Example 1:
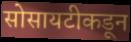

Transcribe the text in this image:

सोसायटीकडून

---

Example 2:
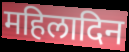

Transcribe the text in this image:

महिलादिन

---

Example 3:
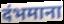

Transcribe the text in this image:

दंभमाना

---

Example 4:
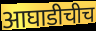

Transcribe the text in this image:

आघाडीचीच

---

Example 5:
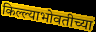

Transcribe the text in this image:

किल्ल्याभोवतीच्या